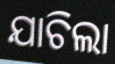
ଯାଚିଲା